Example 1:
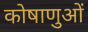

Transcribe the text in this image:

कोषाणुओं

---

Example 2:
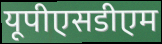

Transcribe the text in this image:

यूपीएसडीएम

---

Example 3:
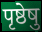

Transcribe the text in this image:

पृष्ठेषु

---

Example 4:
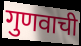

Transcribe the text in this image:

गुणवाची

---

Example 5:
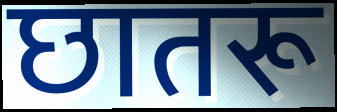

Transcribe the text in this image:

छातरू